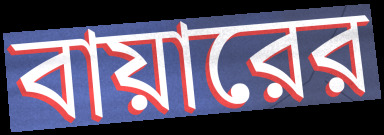
বায়ারের